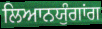
ਲਿਆਨਯੁੰਗਾਂਗ